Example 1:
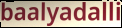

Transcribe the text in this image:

baalyadalli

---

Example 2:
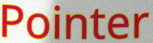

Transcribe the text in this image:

Pointer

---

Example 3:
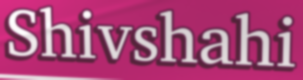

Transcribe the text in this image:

Shivshahi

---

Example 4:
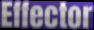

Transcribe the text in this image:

Effector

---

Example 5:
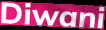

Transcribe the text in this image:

Diwani